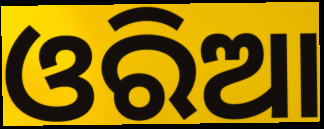
ଓରିଆ